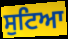
ਸੁਟਿਆ